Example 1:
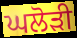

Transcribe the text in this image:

ਘਲੋਡ਼ੀ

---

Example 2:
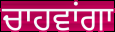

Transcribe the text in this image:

ਚਾਹਵਾਂਗਾ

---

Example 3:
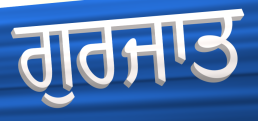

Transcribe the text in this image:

ਗੁਰਜਾਤ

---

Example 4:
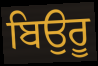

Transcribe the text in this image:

ਬਿਉਰੂ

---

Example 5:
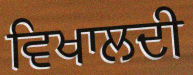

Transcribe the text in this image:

ਵਿਖਾਲਦੀ